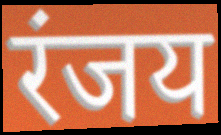
रंजय